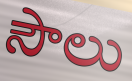
సౌలు